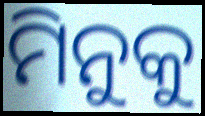
ମିନୁକୁ